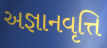
અજ્ઞાનવૃત્તિ